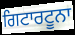
ਗਿਟਾਰਟੂਨਾ